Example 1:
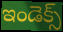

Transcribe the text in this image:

ఇండెక్స్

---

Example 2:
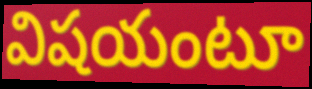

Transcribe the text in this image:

విషయంటూ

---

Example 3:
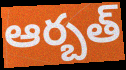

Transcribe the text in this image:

ఆర్బత్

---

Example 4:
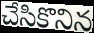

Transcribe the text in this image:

చేసికొనిన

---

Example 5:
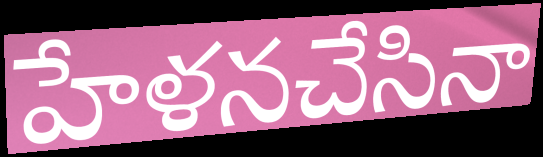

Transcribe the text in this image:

హేళనచేసినా